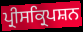
ਪ੍ਰੀਸਕ੍ਰਿਪਸ਼ਨ